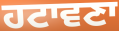
ਹਟਾਵਣਾ